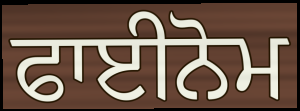
ਫਾਈਨੋਮ